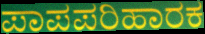
ಪಾಪಪರಿಹಾರಕ